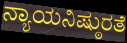
ನ್ಯಾಯನಿಷ್ಠುರತೆ